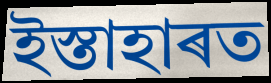
ইস্তাহাৰত